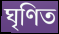
ঘৃণিত